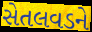
સેતલવડને